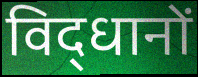
विद्धानों